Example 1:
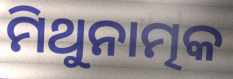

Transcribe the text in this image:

ମିଥୁନାତ୍ମକ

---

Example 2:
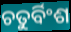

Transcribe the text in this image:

ଚତୁର୍ବିଂଶ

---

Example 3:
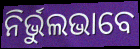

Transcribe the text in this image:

ନିର୍ଭୁଲଭାବେ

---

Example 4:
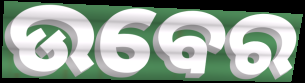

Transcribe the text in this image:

ଉବେର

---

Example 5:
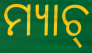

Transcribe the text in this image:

ମ୍ୟାଚ୍